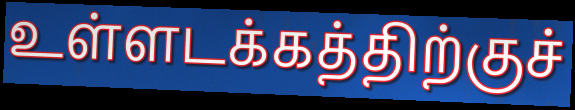
உள்ளடக்கத்திற்குச்